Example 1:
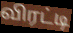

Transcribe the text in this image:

விரட்டி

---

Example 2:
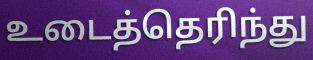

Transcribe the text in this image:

உடைத்தெரிந்து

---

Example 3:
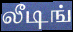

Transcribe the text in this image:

லீடிங்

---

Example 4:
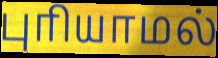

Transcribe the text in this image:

புரியாமல்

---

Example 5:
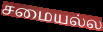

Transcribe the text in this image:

சமையல்ல